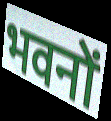
भवनों